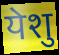
येशु